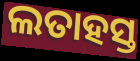
ଲତାହସ୍ତ